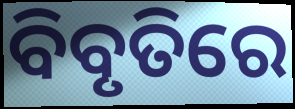
ବିବୃତିରେ